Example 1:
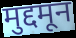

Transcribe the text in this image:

मुद्दमून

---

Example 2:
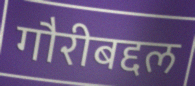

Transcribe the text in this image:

गौरीबद्दल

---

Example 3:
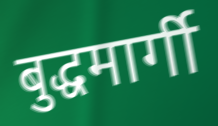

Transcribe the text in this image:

बुद्धमार्गी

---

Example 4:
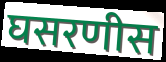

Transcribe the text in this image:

घसरणीस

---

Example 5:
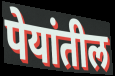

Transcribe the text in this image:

पेयांतील